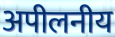
अपीलनीय